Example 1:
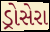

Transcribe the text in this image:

ડ્રોસેરા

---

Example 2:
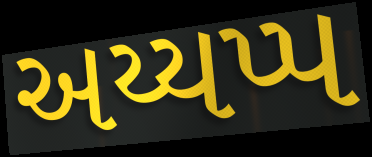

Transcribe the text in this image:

અય્યપ્પ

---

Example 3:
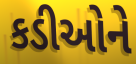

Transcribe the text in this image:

કડીઓને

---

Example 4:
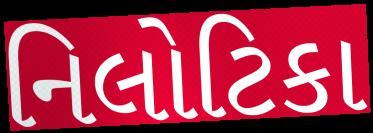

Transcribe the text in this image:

નિલોટિકા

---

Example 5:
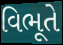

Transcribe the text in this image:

વિભૂતે